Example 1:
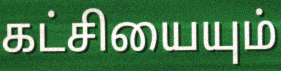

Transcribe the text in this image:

கட்சியையும்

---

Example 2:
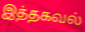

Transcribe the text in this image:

இத்தகவல்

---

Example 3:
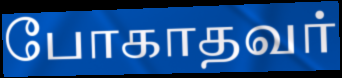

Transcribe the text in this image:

போகாதவர்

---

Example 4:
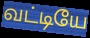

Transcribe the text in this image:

வட்டியே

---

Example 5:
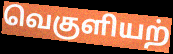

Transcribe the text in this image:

வெகுளியற்